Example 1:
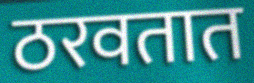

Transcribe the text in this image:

ठरवतात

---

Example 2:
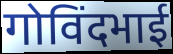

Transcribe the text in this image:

गोविंदभाई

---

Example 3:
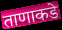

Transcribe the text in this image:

ताणाकडे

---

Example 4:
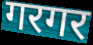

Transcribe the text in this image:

गरगर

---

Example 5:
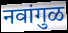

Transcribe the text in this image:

नवांगुळ